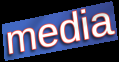
media